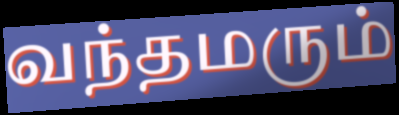
வந்தமரும்